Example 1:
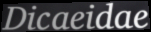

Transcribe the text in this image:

Dicaeidae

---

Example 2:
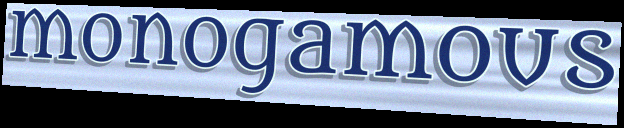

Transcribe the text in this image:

monogamous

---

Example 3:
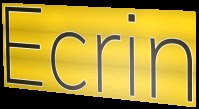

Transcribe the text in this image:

Ecrin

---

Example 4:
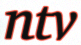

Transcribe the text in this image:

ntv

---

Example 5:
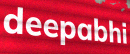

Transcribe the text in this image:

deepabhi